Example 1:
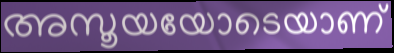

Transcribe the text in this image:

അസൂയയോടെയാണ്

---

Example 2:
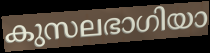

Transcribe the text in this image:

കുസലഭാഗിയാ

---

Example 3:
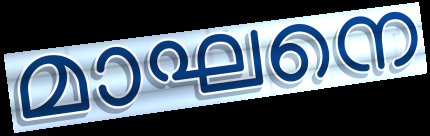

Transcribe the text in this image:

മാഘനെ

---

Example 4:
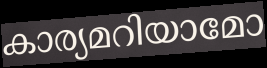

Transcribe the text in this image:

കാര്യമറിയാമോ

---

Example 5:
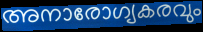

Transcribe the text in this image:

അനാരോഗ്യകരവും